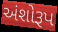
અંશોરૂપ